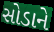
સોડાને